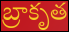
బ్రాకృత